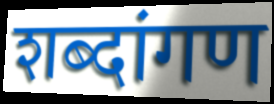
शब्दांगण